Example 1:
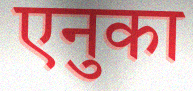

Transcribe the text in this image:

एनुका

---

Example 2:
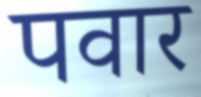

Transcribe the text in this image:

पवार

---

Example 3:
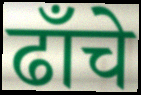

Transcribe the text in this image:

ढाँचे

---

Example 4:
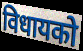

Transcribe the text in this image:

विधायको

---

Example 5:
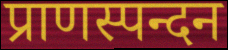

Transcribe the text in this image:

प्राणस्पन्दन